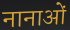
नानाओं